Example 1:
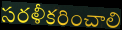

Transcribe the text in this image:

సరళీకరించాలి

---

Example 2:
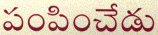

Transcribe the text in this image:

పంపించేడు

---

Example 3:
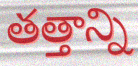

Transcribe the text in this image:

తత్తాన్ని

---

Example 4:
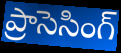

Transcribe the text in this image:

ప్రాసెసింగ్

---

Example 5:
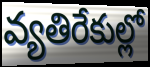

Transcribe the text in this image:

వ్యతిరేకుల్లో